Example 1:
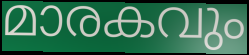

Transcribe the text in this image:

മാരകവും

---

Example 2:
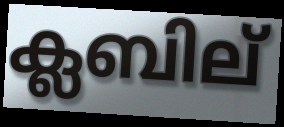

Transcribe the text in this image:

ക്ലബില്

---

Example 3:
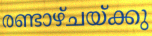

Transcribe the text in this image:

രണ്ടാഴ്ചയ്ക്കു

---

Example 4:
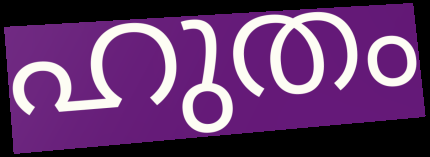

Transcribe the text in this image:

ഹുതം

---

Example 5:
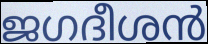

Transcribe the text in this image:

ജഗദീശൻ